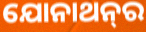
ଯୋନାଥନ୍‍ର